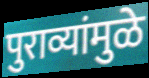
पुराव्यांमुळे